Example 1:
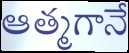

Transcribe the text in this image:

ఆత్మగానే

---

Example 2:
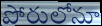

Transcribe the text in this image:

పోరులోనూ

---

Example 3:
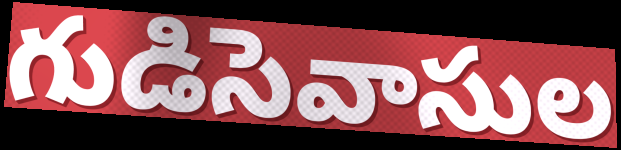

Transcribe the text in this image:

గుడిసెవాసుల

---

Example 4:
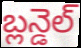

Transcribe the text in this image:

బ్లన్డెల్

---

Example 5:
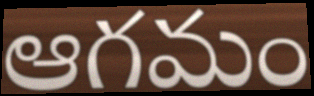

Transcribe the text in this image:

ఆగమం